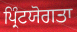
ਪ੍ਰਿੰਟਯੋਗਤਾ